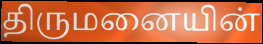
திருமனையின்